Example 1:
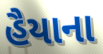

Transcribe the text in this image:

હૈયાના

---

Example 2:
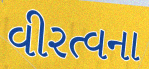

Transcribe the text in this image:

વીરત્વના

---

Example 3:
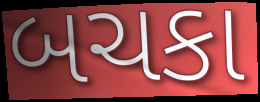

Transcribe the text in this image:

બચકા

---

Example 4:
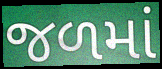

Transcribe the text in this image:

જળમાં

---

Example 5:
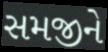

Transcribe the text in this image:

સમજીને